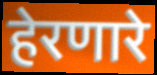
हेरणारे